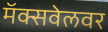
मॅक्सवेलवर